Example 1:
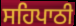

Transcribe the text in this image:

ਸਹਿਪਾਠੀ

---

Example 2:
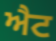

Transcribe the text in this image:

ਐਟ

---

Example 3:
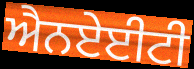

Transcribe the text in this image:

ਐਨਏਈਟੀ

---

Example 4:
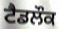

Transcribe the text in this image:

ਟੈਡਲੌਕ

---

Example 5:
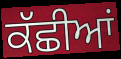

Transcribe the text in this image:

ਕੱਛੀਆਂ